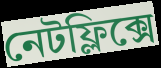
নেটফ্লিক্সে